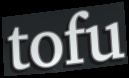
tofu